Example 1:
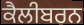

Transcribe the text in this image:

ਕੈਲੀਬਰਨ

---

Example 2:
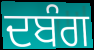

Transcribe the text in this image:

ਦਬੰਗ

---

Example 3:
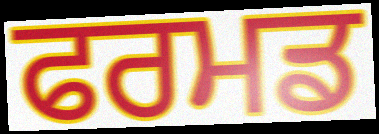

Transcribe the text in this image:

ਫਰਮਡ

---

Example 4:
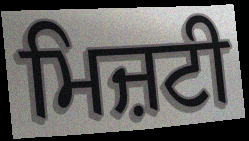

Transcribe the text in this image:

ਮਿਜ਼ਟੀ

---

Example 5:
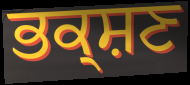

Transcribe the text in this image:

ਭਕ੍ਸ਼ਣ